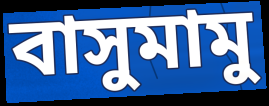
বাসুমামু